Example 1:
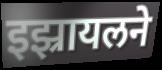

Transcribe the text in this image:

इझ्रायलने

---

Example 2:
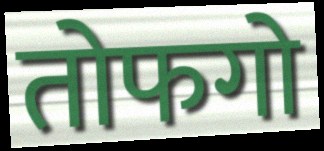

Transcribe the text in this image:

तोफगो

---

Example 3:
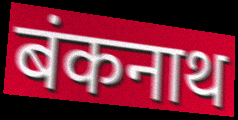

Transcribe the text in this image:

बंकनाथ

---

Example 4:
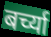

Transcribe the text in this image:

बर्च्या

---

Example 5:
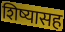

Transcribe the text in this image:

शिष्यासह